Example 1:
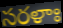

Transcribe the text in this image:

సరళాః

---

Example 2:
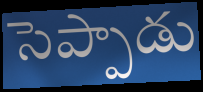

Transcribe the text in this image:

సెప్పాడు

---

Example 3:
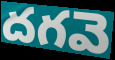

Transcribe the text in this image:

దగవె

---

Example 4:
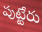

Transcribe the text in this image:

పుట్టేరు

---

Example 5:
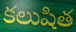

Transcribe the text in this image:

కలుషిత